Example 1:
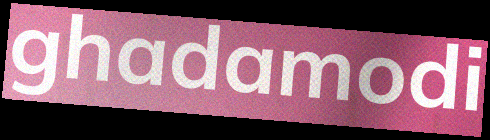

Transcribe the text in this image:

ghadamodi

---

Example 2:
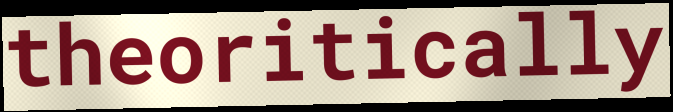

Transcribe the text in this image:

theoritically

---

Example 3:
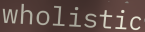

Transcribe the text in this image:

wholistic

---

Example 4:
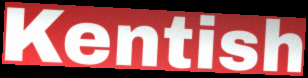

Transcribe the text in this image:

Kentish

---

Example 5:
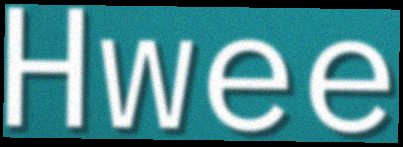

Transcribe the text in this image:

Hwee